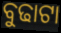
ବୁଢାଟା